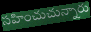
సహించుచున్నారు